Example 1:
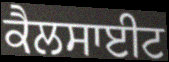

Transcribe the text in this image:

ਕੈਲਸਾਈਟ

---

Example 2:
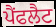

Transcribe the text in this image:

ਪੈਂਫਲੈਟ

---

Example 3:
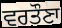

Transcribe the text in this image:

ਵਰਤੌਣਾ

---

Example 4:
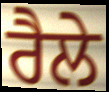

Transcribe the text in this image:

ਰੈਲੇ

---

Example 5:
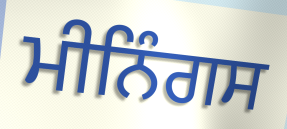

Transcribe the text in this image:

ਮੀਨਿੰਗਸ